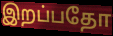
இறப்பதோ